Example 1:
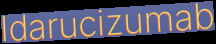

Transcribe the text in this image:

Idarucizumab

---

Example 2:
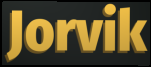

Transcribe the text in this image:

Jorvik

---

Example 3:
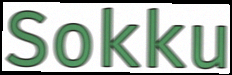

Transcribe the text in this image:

Sokku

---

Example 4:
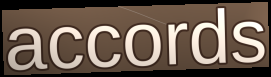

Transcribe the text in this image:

accords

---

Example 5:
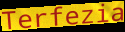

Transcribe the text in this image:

Terfezia